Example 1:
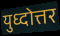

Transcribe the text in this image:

युध्दोत्तर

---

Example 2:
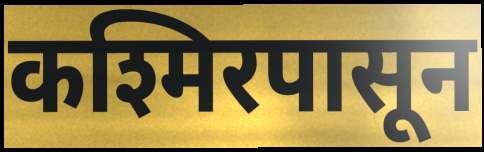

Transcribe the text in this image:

कश्मिरपासून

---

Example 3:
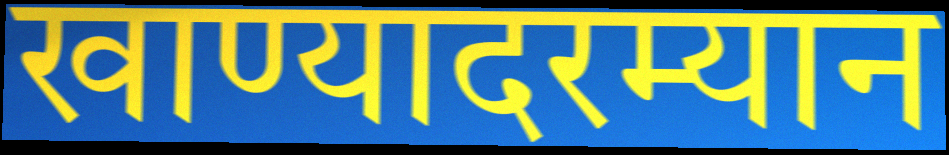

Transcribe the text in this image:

खाण्यादरम्यान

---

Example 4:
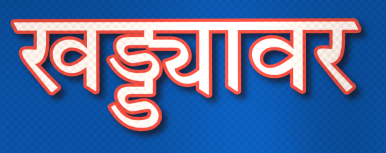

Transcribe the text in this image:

खड्ड्यावर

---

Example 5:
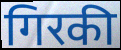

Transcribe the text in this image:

गिरकी